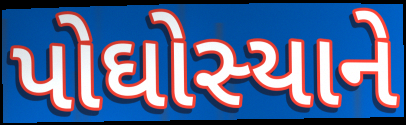
પોઘોસ્યાને